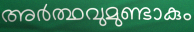
അർത്ഥവുമുണ്ടാകും